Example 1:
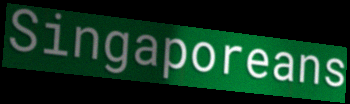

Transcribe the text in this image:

Singaporeans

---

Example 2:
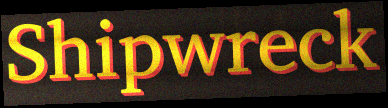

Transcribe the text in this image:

Shipwreck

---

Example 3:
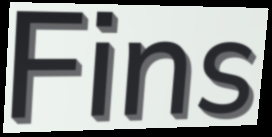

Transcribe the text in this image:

Fins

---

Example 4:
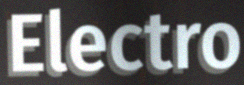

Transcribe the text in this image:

Electro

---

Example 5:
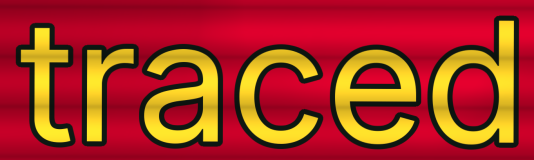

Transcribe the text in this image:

traced